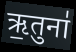
ऋ॒तुना॑